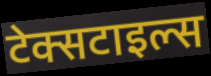
टेक्सटाइल्स